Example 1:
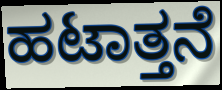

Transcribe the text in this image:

ಹಟಾತ್ತನೆ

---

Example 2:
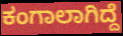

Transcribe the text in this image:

ಕಂಗಾಲಾಗಿದ್ದೆ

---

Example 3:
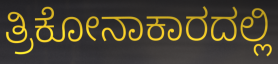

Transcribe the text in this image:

ತ್ರಿಕೋನಾಕಾರದಲ್ಲಿ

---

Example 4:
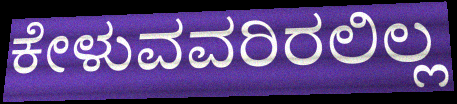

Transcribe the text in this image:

ಕೇಳುವವರಿರಲಿಲ್ಲ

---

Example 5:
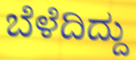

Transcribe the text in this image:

ಬೆಳೆದಿದ್ದು